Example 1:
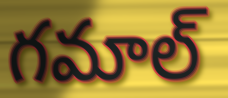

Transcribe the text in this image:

గమాల్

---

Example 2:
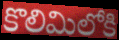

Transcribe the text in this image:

కొలిమిలోకి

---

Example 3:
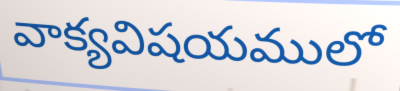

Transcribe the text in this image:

వాక్యవిషయములో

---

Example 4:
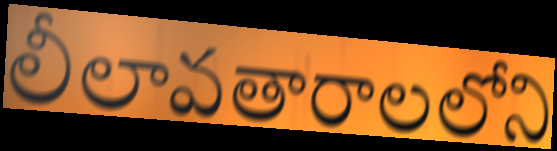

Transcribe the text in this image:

లీలావతారాలలోని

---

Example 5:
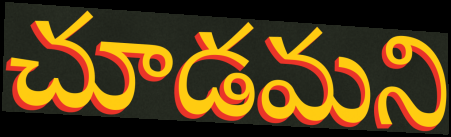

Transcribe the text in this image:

చూడమని